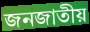
জনজাতীয়